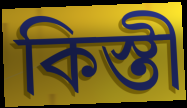
কিস্তী